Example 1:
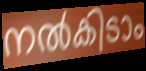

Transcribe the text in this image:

നൽകിടാം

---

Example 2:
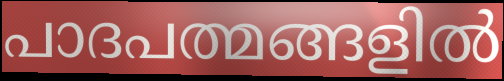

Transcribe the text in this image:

പാദപത്മങ്ങളിൽ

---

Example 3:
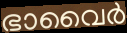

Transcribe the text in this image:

ഭാവൈർ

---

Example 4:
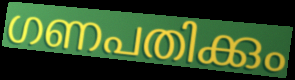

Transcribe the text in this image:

ഗണപതിക്കും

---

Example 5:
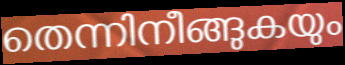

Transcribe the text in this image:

തെന്നിനീങ്ങുകയും